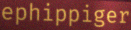
ephippiger